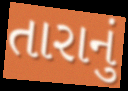
તારાનું